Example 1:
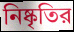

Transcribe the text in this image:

নিষ্কৃতির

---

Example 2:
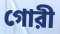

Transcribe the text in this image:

গোরী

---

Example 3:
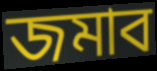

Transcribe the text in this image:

জমাব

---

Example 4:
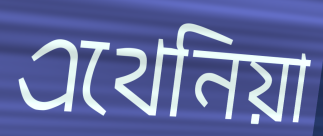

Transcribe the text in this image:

এথেনিয়া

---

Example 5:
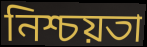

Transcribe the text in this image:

নিশ্চয়তা